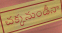
చక్కనుండీనా